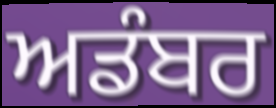
ਅਡੰਬਰ